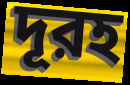
দূরহ